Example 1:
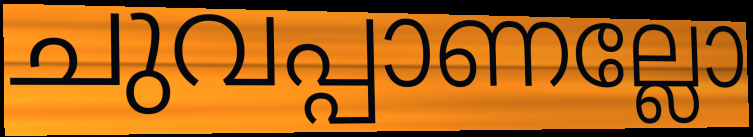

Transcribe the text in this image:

ചുവപ്പാണല്ലോ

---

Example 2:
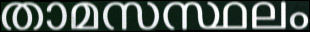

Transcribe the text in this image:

താമസസ്ഥലം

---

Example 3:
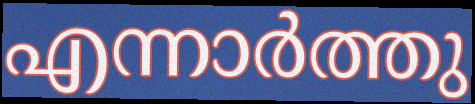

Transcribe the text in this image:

എന്നാർത്തു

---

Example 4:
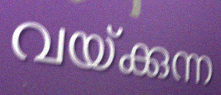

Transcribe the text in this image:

വയ്‌ക്കുന്ന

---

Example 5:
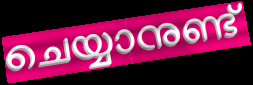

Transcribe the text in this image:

ചെയ്യാനുണ്ട്